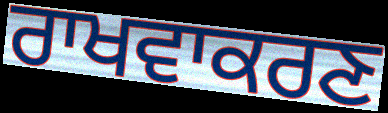
ਰਾਖਵਾਕਰਣ